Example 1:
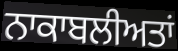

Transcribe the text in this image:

ਨਾਕਾਬਲੀਅਤਾਂ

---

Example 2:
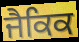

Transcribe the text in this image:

ਜੈਕਿਕ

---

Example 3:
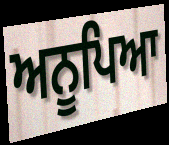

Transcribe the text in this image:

ਅਨੂਪਿਆ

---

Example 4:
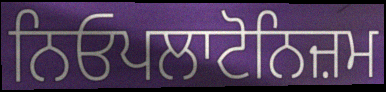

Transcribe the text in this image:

ਨਿਓਪਲਾਟੋਨਿਜ਼ਮ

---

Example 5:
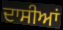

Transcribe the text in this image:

ਦਾਸੀਆਂ